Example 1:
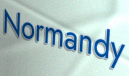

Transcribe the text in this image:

Normandy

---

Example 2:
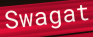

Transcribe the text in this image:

Swagat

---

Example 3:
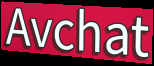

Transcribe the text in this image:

Avchat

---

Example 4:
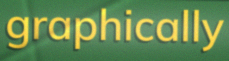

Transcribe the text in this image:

graphically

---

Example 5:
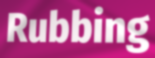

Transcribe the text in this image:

Rubbing